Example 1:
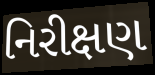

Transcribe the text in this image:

નિરીક્ષણ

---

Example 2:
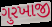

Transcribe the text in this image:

ગુરખાજી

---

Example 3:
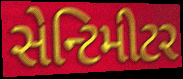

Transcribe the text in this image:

સેન્ટિમીટર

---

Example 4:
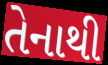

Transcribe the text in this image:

તેનાથી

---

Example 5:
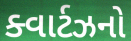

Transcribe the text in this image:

ક્વાર્ટઝનો